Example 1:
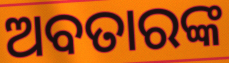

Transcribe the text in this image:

ଅବତାରଙ୍କ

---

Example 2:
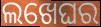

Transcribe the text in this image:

ଲଖେଘର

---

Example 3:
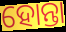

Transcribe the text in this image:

ହୋନ୍ତା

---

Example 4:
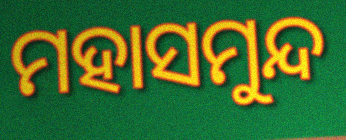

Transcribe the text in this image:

ମହାସମୁନ୍ଦ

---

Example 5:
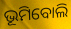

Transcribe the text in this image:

ଭୂମିବୋଲି